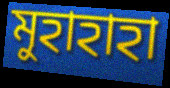
মুহাহাহা